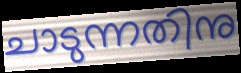
ചാടുന്നതിനു